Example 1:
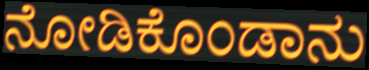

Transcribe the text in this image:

ನೋಡಿಕೊಂಡಾನು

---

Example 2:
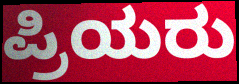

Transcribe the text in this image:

ಪ್ರಿಯರು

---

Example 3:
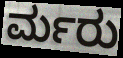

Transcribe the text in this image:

ರ್ಮರು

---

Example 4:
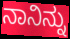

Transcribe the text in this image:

ನಾನಿನ್ನು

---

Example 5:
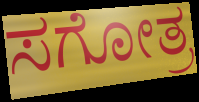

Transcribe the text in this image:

ಸಗೋತ್ರ